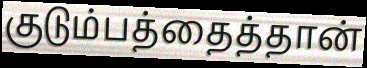
குடும்பத்தைத்தான்